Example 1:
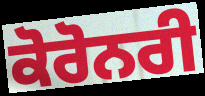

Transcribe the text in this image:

ਕੋਰੋਨਰੀ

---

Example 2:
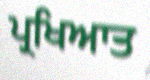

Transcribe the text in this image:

ਪ੍ਰਖਿਆਤ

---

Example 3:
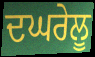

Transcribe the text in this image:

ਦਘਰੇਲੂ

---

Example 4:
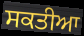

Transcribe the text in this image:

ਸਕਤੀਆ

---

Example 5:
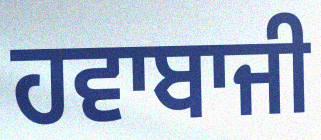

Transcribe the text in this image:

ਹਵਾਬਾਜੀ